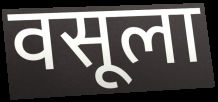
वसूला